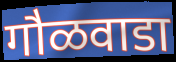
गौळवाडा